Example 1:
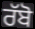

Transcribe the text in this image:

ਰੱਬੋ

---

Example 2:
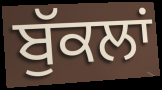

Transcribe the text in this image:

ਬੁੱਕਲਾਂ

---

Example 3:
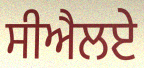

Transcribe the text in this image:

ਸੀਐਲਏ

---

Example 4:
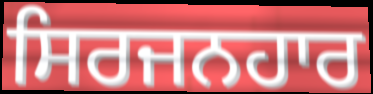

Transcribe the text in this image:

ਸਿਰਜਨਹਾਰ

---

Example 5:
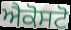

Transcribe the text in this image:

ਐਕੋਸਟੋ